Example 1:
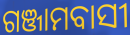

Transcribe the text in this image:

ଗଞ୍ଜାମବାସୀ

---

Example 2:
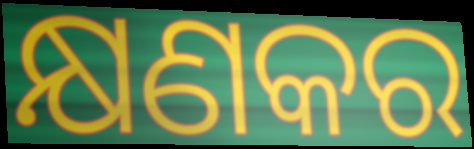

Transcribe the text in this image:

କ୍ଷଣକର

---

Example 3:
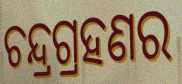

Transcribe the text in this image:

ଚନ୍ଦ୍ରଗ୍ରହଣର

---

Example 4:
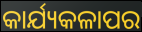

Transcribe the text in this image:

କାର୍ଯ୍ୟକଳାପର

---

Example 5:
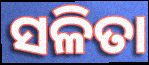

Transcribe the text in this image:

ସଳିତା